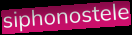
siphonostele